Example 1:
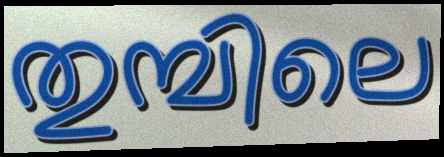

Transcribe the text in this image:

തുമ്പിലെ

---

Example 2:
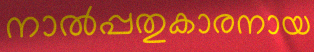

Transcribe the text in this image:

നാൽപ്പതുകാരനായ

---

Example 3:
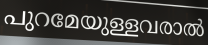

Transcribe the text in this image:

പുറമേയുള്ളവരാൽ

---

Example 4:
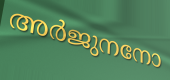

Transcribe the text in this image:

അർജുനനോ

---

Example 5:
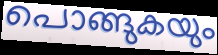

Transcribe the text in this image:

പൊങ്ങുകയും